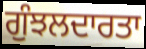
ਗੁੰਝਲਦਾਰਤਾ